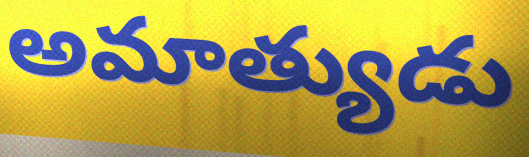
అమాత్యుడు